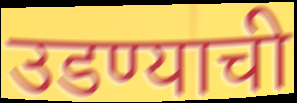
उडण्याची